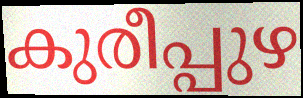
കുരീപ്പുഴ